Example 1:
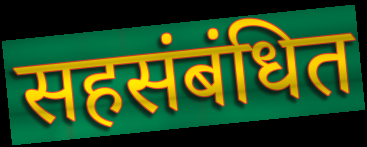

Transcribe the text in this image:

सहसंबंधित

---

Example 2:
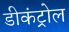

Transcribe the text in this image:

डीकंट्रोल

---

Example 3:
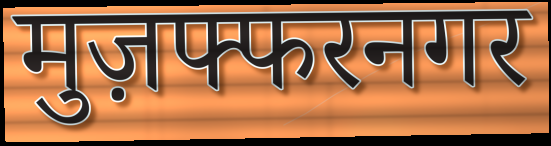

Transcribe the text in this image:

मुज़फ्फरनगर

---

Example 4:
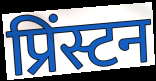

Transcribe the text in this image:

प्रिंस्टन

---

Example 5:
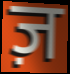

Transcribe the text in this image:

ज़